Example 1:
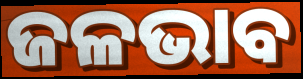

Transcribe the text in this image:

ଜଳଭାବ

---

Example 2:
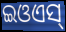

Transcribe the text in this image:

ଇଓଏସ୍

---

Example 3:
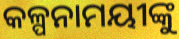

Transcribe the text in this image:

କଳ୍ପନାମୟୀଙ୍କୁ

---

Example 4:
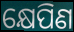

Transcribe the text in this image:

କ୍ଷେପିଣ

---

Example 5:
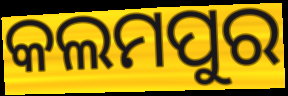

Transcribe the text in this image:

କଲମପୁର